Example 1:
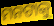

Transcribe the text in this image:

ମନଟାକୁ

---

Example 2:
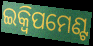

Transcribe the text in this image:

ଇକ୍ୱିପମେଣ୍ଟ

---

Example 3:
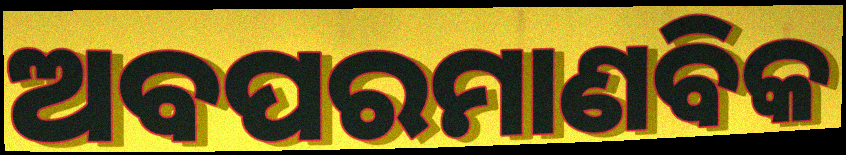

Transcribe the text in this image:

ଅବପରମାଣବିକ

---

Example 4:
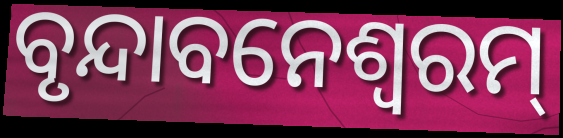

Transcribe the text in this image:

ବୃନ୍ଦାବନେଶ୍ୱରମ୍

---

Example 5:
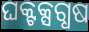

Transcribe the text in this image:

ଘକ୍ଟକ୍ସଗ୍ଧଷ